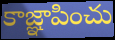
కాజ్ఞాపించు